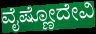
ವೈಷ್ಣೋದೇವಿ